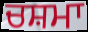
ਚਸ਼ਮਾ